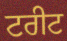
ਟਰੀਟ